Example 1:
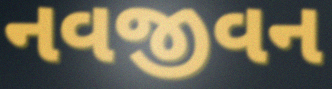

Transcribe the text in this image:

નવજીવન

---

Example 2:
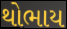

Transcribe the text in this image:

થોભાય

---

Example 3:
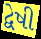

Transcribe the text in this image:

દ્વેષી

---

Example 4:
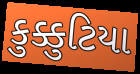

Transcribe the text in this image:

કુક્કુટિયા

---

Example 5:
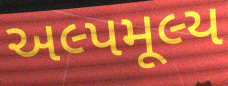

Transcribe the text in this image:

અલ્પમૂલ્ય